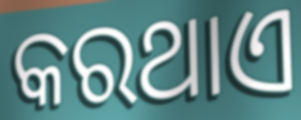
କରଥାଏ